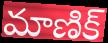
మాణిక్